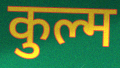
कुल्म